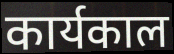
कार्यकाल